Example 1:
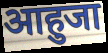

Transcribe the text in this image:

आहुजा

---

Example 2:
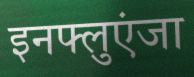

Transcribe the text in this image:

इनफ्लुएंजा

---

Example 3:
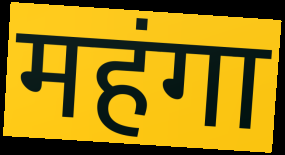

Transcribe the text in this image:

महंगा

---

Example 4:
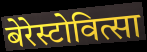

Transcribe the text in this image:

बेरेस्टोवित्सा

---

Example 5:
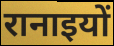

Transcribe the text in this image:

रानाइयों